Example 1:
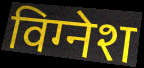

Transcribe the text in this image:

विग्‍नेश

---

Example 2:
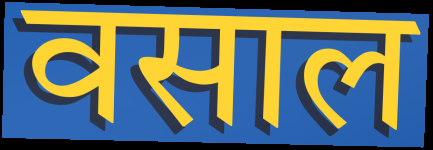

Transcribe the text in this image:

वसाल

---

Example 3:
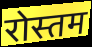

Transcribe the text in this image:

रोस्तम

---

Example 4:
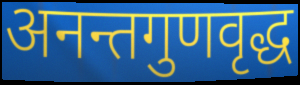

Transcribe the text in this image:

अनन्तगुणवृद्ध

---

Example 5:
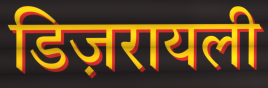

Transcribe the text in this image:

डिज़रायली